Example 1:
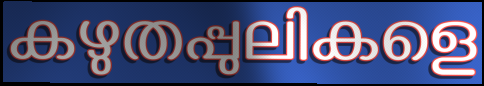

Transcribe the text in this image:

കഴുതപ്പുലികളെ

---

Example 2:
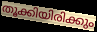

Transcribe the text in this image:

തൂക്കിയിരിക്കും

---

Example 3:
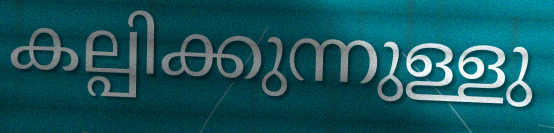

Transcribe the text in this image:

കല്പിക്കുന്നുള്ളു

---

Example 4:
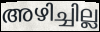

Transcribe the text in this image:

അഴിച്ചില്ല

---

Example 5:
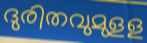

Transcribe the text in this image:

ദുരിതവുമുളള